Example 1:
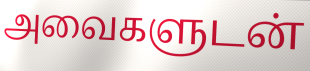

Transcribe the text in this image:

அவைகளுடன்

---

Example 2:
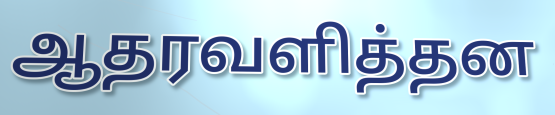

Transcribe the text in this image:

ஆதரவளித்தன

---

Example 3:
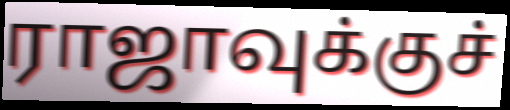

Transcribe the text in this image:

ராஜாவுக்குச்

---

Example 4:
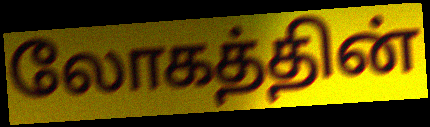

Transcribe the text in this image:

லோகத்தின்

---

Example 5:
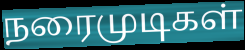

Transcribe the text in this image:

நரைமுடிகள்